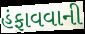
હંફાવવાની